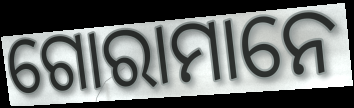
ଗୋରାମାନେ